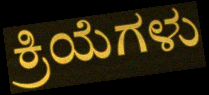
ಕ್ರಿಯೆಗಳು